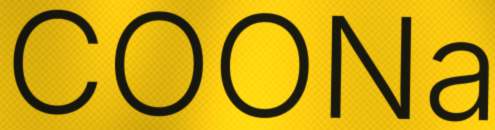
COONa